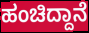
ಹಂಚಿದ್ದಾನೆ